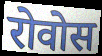
रोवोस